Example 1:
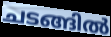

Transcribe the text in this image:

ചടങ്ങിൽ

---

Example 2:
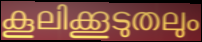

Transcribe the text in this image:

കൂലിക്കൂടുതലും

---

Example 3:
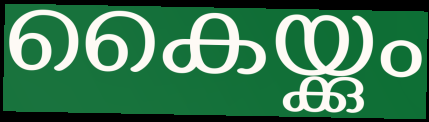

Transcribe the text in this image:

കൈയ്ക്കും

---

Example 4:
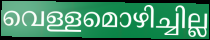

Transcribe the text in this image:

വെള്ളമൊഴിച്ചില്ല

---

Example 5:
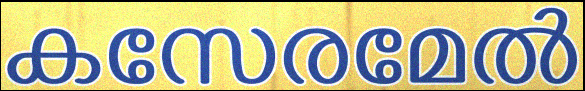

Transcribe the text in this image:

കസേരമേൽ